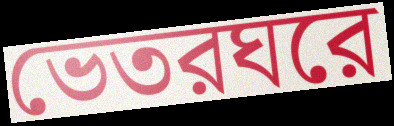
ভেতরঘরে